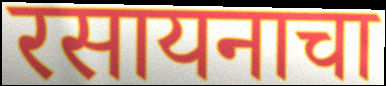
रसायनाचा